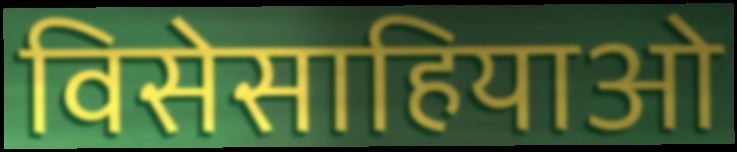
विसेसाहियाओ